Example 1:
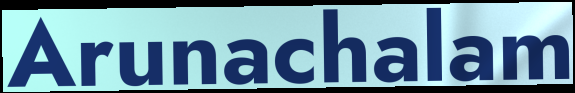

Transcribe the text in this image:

Arunachalam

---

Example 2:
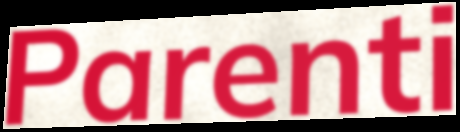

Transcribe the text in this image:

Parenti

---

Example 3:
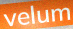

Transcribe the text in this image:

velum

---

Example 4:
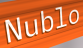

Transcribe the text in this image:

Nublo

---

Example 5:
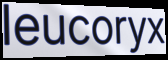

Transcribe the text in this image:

leucoryx